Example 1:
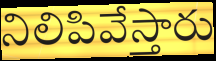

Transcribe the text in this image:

నిలిపివేస్తారు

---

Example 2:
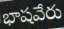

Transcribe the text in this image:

భాషవేరు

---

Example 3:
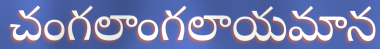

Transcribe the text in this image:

చంగలాంగలాయమాన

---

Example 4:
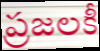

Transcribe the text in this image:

ప్రజలకీ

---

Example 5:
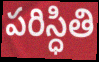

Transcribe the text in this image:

పరిస్ధితి